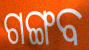
ଗଙ୍ଗବ